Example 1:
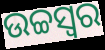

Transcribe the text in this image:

ଉଚ୍ଚସ୍ବର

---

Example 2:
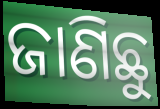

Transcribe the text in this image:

ଜାଣିଛୁ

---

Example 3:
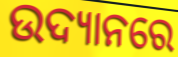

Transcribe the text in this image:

ଉଦ୍ୟାନରେ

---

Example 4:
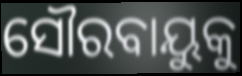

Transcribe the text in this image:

ସୌରବାୟୁକୁ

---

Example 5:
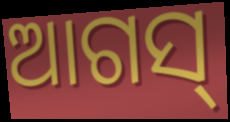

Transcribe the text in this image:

ଆଗସ୍